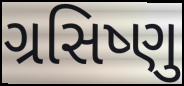
ગ્રસિષ્ણુ